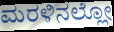
ಮರಳಿನಲ್ಲೋ